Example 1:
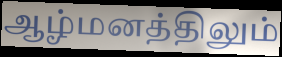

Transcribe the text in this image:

ஆழ்மனத்திலும்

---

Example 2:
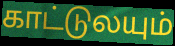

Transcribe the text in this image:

காட்டுலயும்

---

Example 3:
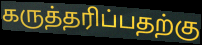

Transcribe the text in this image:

கருத்தரிப்பதற்கு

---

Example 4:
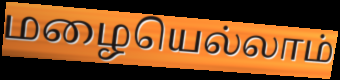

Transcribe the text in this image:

மழையெல்லாம்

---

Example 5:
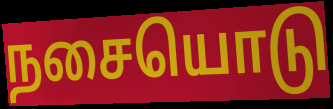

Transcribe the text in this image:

நசையொடு